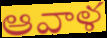
ఆవాళ